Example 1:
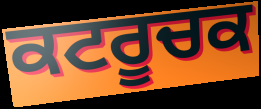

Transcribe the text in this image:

ਕਟਰੂਚਕ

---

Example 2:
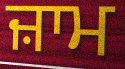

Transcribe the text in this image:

ਜ਼ਾਮ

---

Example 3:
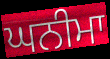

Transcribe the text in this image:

ਘਨੀਮਾ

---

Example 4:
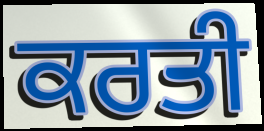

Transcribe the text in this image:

ਕਰਤੀ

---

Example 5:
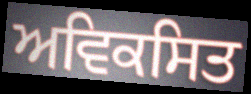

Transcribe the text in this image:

ਅਵਿਕਸਿਤ